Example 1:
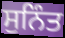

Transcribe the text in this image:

ਸੁਨਿੰਤ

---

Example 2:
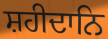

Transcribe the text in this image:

ਸ਼ਹੀਦਾਨਿ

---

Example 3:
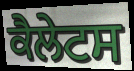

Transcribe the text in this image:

ਕੈਲੇਟਸ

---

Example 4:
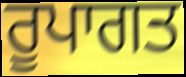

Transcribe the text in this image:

ਰੂਪਾਗਤ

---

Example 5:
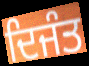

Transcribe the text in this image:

ਦਿਜੰਤ